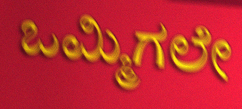
ಒಮ್ಮಿಗಲೇ